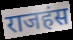
राजहंस